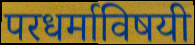
परधर्माविषयी